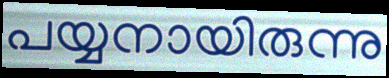
പയ്യനായിരുന്നു